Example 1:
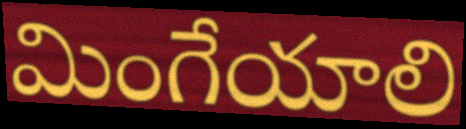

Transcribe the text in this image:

మింగేయాలి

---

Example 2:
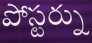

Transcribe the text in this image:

పోస్టర్ను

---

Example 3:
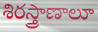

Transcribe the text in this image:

శిరస్త్రాణాలూ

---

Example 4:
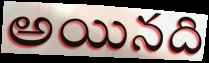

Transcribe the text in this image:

అయినది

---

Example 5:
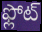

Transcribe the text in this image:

ఫ్లోట్